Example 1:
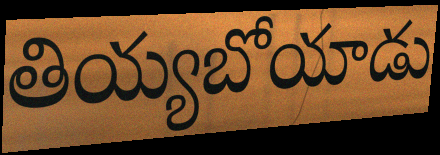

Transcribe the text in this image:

తియ్యబోయాడు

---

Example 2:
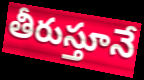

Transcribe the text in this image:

తీరుస్తూనే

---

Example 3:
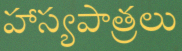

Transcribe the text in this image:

హాస్యపాత్రలు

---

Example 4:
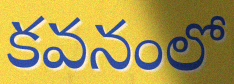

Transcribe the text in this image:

కవనంలో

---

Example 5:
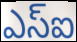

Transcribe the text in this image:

ఎస్ఐ